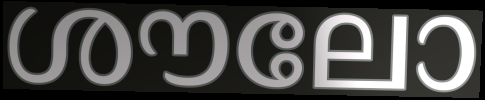
ശൗലോ